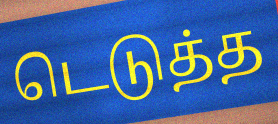
டெடுத்த